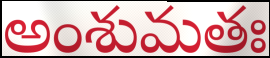
అంశుమతః